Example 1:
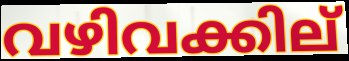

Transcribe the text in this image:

വഴിവക്കില്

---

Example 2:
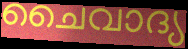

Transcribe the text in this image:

ചൈവാദ്യ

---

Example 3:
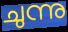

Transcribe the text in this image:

ചുന്നു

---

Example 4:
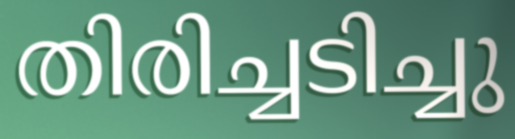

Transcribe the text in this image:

തിരിച്ചടിച്ചു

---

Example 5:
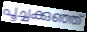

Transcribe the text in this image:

പൂച്ചക്കുഞ്ഞ്